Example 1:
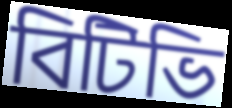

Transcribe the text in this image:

বিটিভি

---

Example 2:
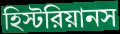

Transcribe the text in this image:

হিস্টরিয়ানস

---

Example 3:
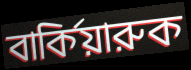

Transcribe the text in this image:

বার্কিয়ারুক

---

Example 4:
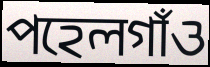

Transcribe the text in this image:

পহেলগাঁও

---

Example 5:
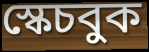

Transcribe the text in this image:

স্কেচবুক